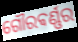
ଗୌରଵର୍ଣ୍ଣର